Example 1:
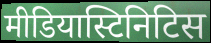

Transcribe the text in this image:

मीडियास्टिनिटिस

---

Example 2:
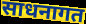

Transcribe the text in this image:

साधनागत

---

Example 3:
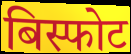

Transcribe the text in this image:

बिस्फोट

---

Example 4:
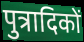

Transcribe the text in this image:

पुत्रादिकों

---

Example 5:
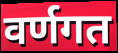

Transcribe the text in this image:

वर्णगत